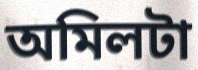
অমিলটা